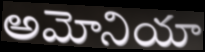
అమోనియా